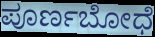
ಪೂರ್ಣಬೋಧೆ